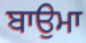
ਬਾਉਮਾ